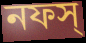
নফস্